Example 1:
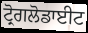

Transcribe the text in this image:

ਟ੍ਰੋਗਲੋਡਾਈਟ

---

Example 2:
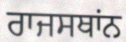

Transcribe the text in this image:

ਰਾਜਸਥਾਂਨ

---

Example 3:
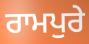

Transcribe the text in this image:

ਰਾਮਪੁਰੇ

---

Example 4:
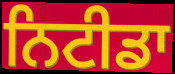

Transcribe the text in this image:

ਨਿਟੀਡਾ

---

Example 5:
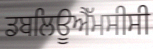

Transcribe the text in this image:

ਡਬਲਿਊਐੱਮਸੀਸੀ